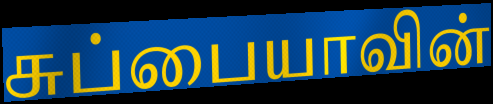
சுப்பையாவின்